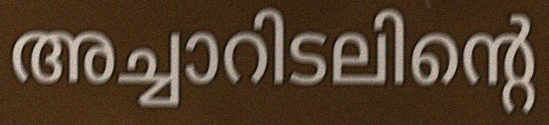
അച്ചാറിടലിന്റെ